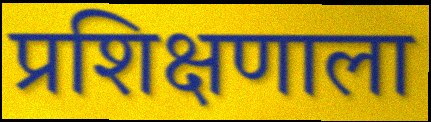
प्रशिक्षणाला